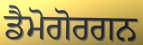
ਡੈਮੋਗੋਰਗਨ